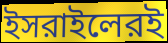
ইসরাইলেরই